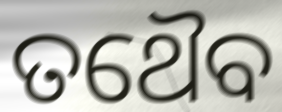
ତଥୈବ